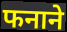
फनाने